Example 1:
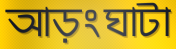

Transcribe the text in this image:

আড়ংঘাটা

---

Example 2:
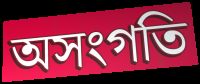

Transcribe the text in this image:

অসংগতি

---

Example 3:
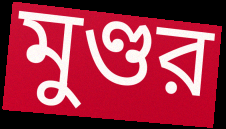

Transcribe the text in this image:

মুণ্ডর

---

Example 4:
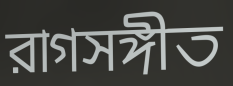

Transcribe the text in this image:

রাগসঙ্গীত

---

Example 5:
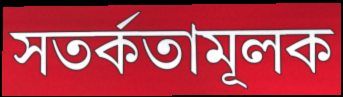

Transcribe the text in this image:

সতর্কতামূলক